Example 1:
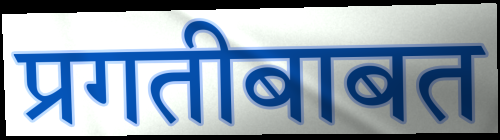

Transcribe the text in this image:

प्रगतीबाबत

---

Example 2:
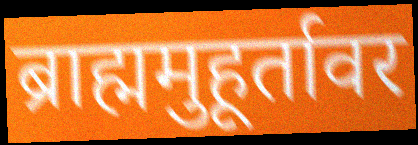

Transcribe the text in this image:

ब्राह्ममुहूर्तावर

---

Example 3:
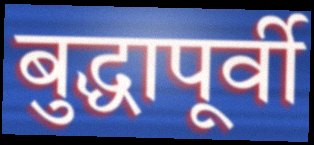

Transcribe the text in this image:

बुद्धापूर्वी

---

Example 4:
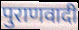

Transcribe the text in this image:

पुराणवादी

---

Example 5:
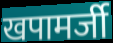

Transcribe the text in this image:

खपामर्जी